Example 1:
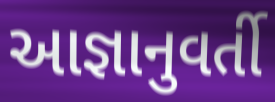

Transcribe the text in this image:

આજ્ઞાનુવર્તી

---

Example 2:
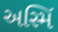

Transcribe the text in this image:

અસ્મિં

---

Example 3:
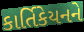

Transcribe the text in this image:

કાર્તિકેયનને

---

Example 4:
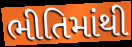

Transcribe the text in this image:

ભીતિમાંથી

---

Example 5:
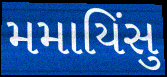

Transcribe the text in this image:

મમાયિંસુ